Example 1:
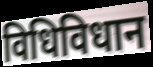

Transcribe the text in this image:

विधिविधान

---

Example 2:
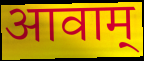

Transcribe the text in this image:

आवाम्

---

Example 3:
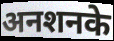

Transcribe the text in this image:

अनशनके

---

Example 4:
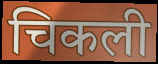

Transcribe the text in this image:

चिकली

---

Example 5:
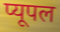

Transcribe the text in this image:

प्यूपल